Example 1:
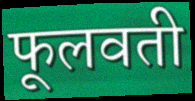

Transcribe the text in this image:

फूलवती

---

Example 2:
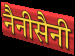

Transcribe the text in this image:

नैनीसैनी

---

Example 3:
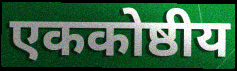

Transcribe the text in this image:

एककोष्ठीय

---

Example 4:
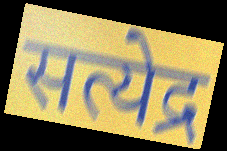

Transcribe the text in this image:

सत्येद्र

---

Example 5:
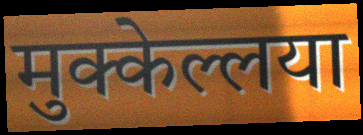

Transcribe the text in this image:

मुक्केल्लया